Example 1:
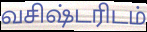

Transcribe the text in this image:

வசிஷ்டரிடம்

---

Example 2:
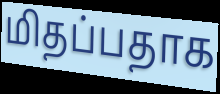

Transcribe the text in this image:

மிதப்பதாக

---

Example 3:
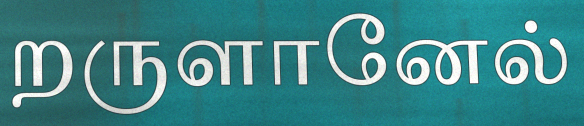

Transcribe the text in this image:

றருளானேல்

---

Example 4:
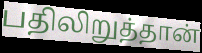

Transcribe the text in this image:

பதிலிறுத்தான்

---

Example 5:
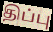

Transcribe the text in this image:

திப்பு